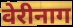
वेरीनाग